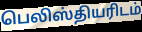
பெலிஸ்தியரிடம்